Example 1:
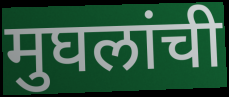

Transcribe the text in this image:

मुघलांची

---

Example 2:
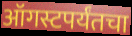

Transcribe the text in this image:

ऑगस्टपर्यंतचा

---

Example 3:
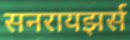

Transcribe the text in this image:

सनरायझर्स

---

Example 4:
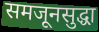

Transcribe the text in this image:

समजूनसुद्धा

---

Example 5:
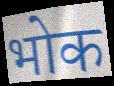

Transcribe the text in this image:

भोक